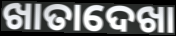
ଖାତାଦେଖା